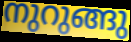
നുറുങ്ങു